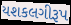
યશકલગીરૂપ